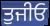
ਤੁਜੀਓ